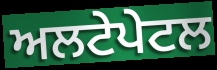
ਅਲਟੇਪੇਟਲ